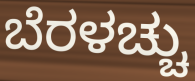
ಬೆರಳಚ್ಚು